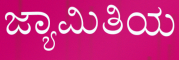
ಜ್ಯಾಮಿತಿಯ